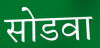
सोडवा